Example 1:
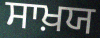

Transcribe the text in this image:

ਸਾਖ਼ਯ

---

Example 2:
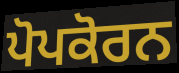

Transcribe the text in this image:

ਪੋਪਕੋਰਨ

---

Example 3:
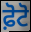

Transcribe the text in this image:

ਫ਼ੋਟੋ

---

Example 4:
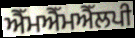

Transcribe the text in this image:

ਐੱਮਐੱਮਐੱਲਪੀ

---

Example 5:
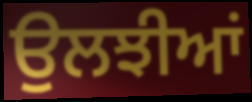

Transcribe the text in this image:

ਉਲਝੀਆਂ